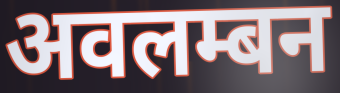
अवलम्बन